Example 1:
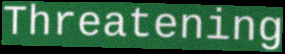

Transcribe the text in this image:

Threatening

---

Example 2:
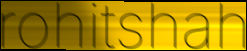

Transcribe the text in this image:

rohitshah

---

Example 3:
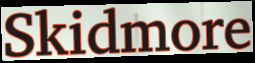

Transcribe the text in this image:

Skidmore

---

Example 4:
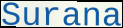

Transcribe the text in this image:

Surana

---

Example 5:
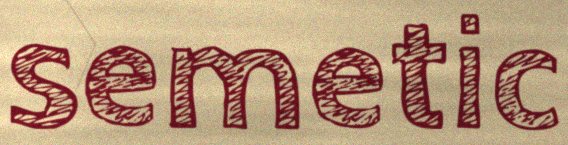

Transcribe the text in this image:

semetic